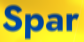
Spar